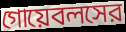
গোয়েবলসের